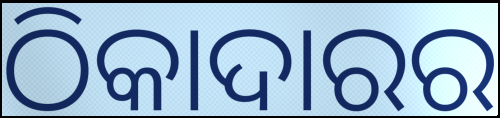
ଠିକାଦାରର